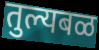
तुल्यबळ